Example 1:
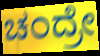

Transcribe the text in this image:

ಚಂದ್ರೇ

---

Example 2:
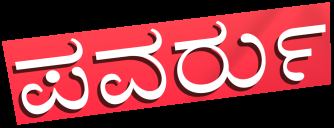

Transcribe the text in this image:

ಪವರ್ರು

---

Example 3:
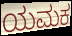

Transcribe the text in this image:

ಯಮಕ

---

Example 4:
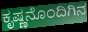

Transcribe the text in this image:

ಕೃಷ್ಣನೊಂದಿಗಿನ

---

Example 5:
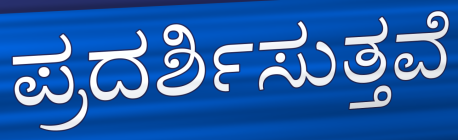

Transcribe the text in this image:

ಪ್ರದರ್ಶಿಸುತ್ತವೆ